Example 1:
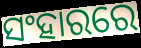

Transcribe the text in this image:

ସଂହାରରେ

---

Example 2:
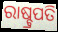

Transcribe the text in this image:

ରାଷ୍ଚ୍ରପତି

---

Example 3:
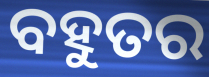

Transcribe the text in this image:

ବହୁତର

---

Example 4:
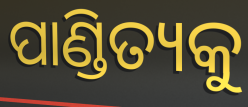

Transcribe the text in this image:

ପାଣ୍ଡିତ୍ୟକୁ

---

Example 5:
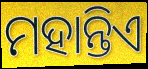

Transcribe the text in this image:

ମହାନ୍ତିଏ